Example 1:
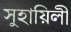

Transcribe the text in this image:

সুহায়িলী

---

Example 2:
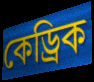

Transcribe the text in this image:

কেড্রিক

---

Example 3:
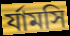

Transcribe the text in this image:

র্যামসি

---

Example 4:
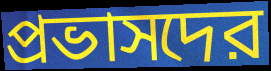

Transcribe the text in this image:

প্রভাসদের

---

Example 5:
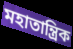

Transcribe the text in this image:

মহাতান্ত্রিক